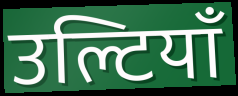
उल्टियाँ